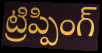
ట్రిప్పింగ్